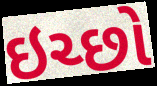
ઇચ્છો